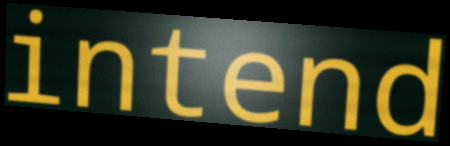
intend